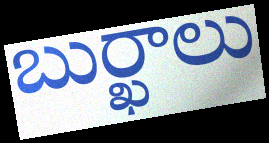
బుర్ఖాలు